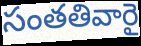
సంతతివారై